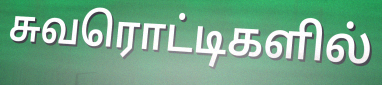
சுவரொட்டிகளில்